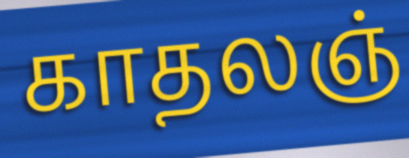
காதலஞ்